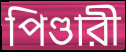
পিণ্ডারী